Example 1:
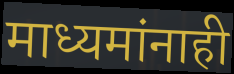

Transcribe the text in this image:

माध्यमांनाही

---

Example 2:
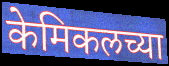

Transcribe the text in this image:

केमिकलच्या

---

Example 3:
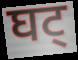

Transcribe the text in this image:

घट्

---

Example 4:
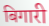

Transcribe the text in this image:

बिगारी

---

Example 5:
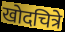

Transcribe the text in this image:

खोदचित्रे